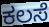
ಕಲಸೆ